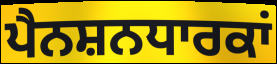
ਪੈਨਸ਼ਨਧਾਰਕਾਂ